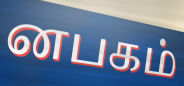
னபகம்